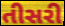
તીસરી